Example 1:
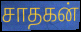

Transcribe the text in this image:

சாதகன்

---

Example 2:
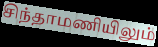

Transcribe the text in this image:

சிந்தாமணியிலும்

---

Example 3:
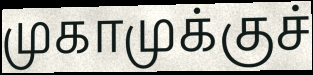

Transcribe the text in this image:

முகாமுக்குச்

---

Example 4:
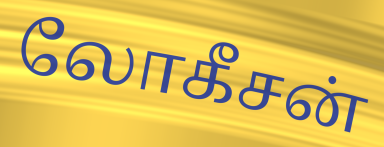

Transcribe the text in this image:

லோகீசன்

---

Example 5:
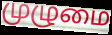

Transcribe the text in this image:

முழுமை